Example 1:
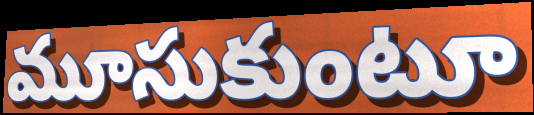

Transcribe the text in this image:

మూసుకుంటూ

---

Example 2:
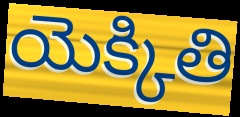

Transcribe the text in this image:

యెక్కితి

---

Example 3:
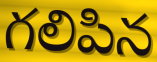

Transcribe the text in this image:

గలిపిన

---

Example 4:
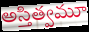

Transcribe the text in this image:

అస్తిత్వమూ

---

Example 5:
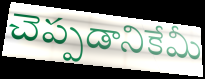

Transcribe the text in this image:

చెప్పడానికేమీ